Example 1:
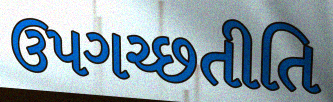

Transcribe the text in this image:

ઉપગચ્છતીતિ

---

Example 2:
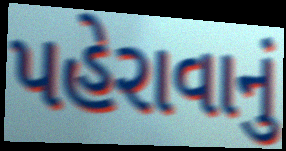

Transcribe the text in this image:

પહેરાવાનું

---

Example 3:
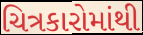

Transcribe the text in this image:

ચિત્રકારોમાંથી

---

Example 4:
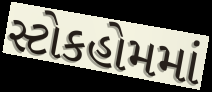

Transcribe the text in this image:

સ્ટોકહોમમાં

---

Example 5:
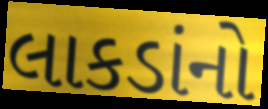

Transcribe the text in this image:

લાકડાંનો